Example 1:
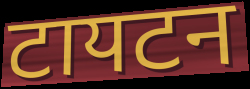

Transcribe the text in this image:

टायटन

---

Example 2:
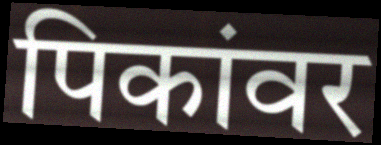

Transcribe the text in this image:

पिकांवर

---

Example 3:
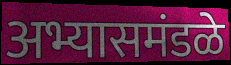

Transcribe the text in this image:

अभ्यासमंडळे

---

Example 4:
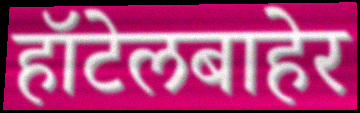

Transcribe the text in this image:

हॉटेलबाहेर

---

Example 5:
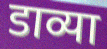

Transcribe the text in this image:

डाव्या